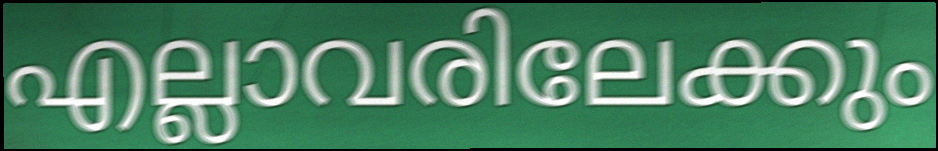
എല്ലാവരിലേക്കും